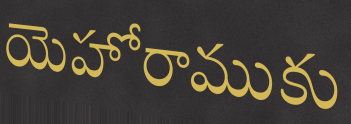
యెహోరాముకు